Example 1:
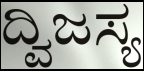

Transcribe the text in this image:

ದ್ವಿಜಸ್ಯ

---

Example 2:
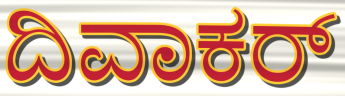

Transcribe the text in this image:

ದಿವಾಕರ್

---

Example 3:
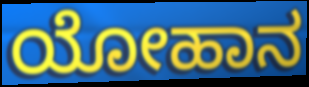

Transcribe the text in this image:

ಯೋಹಾನ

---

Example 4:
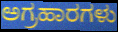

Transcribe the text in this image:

ಅಗ್ರಹಾರಗಳು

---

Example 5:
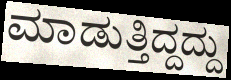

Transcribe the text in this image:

ಮಾಡುತ್ತಿದ್ದದ್ದು